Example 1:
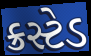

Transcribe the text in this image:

ક્રસ્ટેડ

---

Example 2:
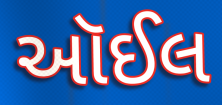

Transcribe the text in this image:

આૅઈલ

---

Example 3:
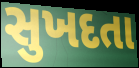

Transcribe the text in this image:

સુખદતા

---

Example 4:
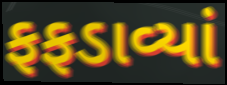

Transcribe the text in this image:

ફફડાવ્યાં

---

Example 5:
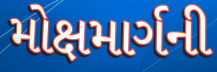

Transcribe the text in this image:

મોક્ષમાર્ગની